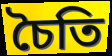
চৈতি